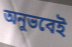
অনুভবেই